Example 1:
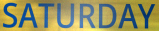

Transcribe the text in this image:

SATURDAY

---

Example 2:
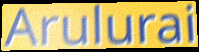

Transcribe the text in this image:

Arulurai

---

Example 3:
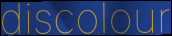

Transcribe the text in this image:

discolour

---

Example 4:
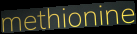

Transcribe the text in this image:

methionine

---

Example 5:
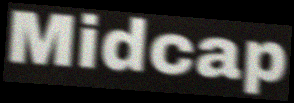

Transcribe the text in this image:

Midcap